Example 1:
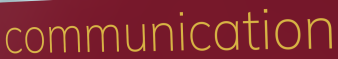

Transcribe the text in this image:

communication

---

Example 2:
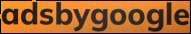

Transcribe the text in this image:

adsbygoogle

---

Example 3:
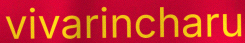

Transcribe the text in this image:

vivarincharu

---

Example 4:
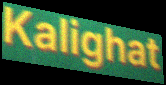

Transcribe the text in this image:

Kalighat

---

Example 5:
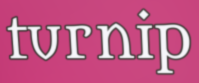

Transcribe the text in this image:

turnip